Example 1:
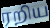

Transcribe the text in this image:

ரறிய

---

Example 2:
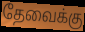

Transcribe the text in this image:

தேவைக்கு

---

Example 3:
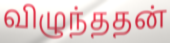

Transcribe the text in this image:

விழுந்ததன்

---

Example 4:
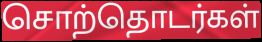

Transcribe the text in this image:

சொற்தொடர்கள்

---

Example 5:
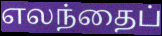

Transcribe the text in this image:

எலந்தைப்